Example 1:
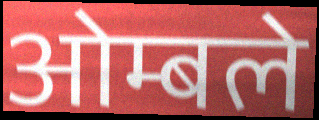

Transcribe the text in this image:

ओम्बले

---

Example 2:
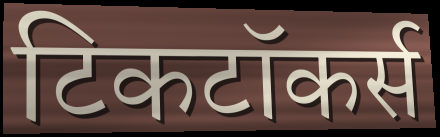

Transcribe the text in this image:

टिकटॉकर्स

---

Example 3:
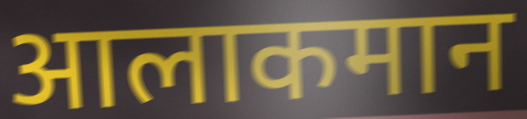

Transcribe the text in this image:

आलाकमान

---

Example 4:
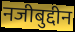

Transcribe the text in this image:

नजीबुद्दीन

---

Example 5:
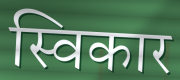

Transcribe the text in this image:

स्विकार